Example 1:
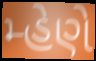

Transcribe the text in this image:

મ્હેણે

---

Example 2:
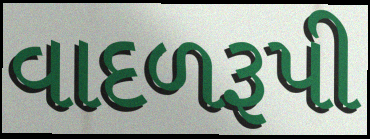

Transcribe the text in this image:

વાદળરૂપી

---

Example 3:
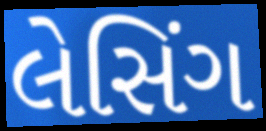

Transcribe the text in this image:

લેસિંગ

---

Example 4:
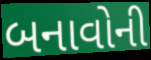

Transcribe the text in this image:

બનાવોની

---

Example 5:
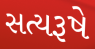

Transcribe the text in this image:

સત્યરૂષે